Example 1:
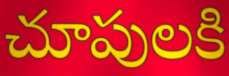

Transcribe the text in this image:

చూపులకి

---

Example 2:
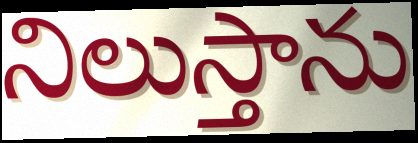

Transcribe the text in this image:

నిలుస్తాను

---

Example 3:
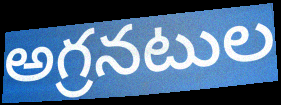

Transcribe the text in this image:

అగ్రనటుల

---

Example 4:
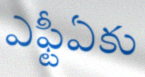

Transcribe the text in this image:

ఎఫ్టీఏకు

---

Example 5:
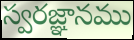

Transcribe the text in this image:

స్వరజ్ఞానము